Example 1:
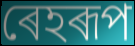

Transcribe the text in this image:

ৰেহৰূপ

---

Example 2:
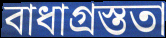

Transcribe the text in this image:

বাধাগ্ৰস্ততা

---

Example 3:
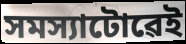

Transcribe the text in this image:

সমস্যাটোৱেই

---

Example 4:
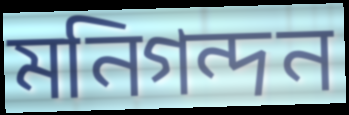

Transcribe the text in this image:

মনিগন্দন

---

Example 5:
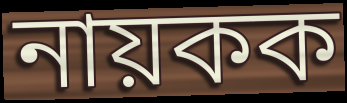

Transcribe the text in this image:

নায়কক